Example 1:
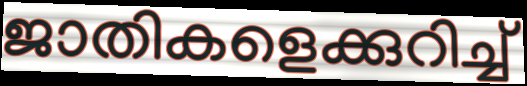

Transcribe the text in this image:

ജാതികളെക്കുറിച്ച്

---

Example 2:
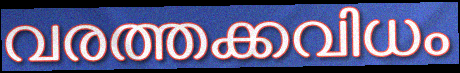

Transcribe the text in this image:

വരത്തക്കവിധം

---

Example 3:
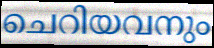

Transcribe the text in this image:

ചെറിയവനും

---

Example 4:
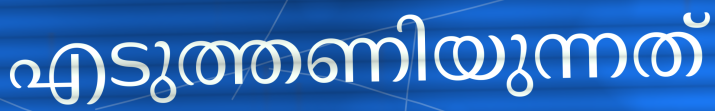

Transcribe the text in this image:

എടുത്തണിയുന്നത്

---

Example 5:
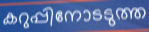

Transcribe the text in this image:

കറുപ്പിനോടടുത്ത